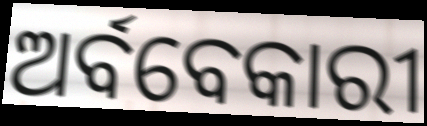
ଅର୍ବବେକାରୀ